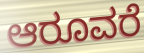
ಆರೂವರೆ